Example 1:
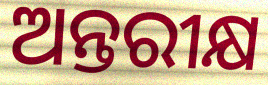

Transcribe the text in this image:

ଅନ୍ତରୀକ୍ଷ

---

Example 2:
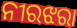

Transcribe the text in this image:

ନୀରଝରା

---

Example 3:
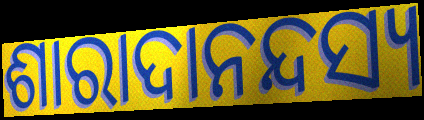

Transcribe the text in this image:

ଶାରାଦାନନ୍ଦସ୍ୟ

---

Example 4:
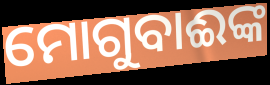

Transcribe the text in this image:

ମୋଗୁବାଈଙ୍କ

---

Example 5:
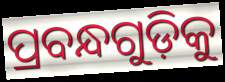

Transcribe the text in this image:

ପ୍ରବନ୍ଧଗୁଡ଼ିକୁ